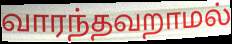
வாரந்தவறாமல்